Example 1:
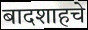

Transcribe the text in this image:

बादशाहचे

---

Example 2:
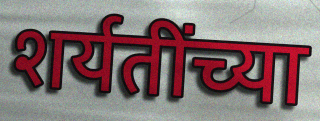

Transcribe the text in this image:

शर्यतींच्या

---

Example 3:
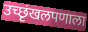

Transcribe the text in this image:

उच्छृंखलपणाला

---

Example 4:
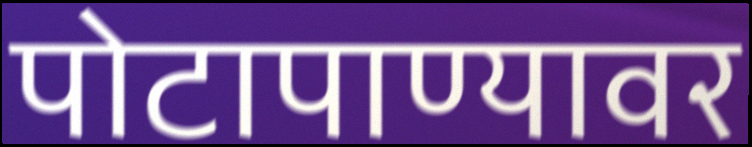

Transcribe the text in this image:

पोटापाण्यावर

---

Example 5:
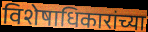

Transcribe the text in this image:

विशेषाधिकारांच्या